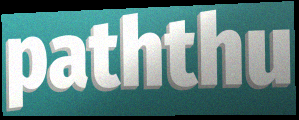
paththu